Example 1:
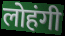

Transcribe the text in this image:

लोहंगी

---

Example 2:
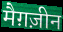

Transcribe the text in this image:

मैग़ज़ीन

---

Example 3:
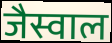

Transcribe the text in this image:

जैस्वाल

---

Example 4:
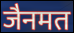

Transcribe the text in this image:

जैनमत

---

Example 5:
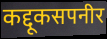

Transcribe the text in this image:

कद्दूकसपनीर